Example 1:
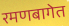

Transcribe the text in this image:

रमणबागेत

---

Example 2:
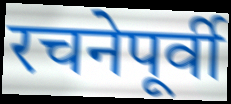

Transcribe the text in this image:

रचनेपूर्वी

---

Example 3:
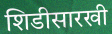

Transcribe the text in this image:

शिडीसारखी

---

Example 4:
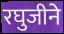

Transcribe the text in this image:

रघुजीने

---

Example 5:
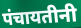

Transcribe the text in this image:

पंचायतीनी